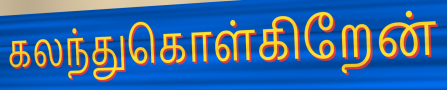
கலந்துகொள்கிறேன்